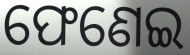
ଫେଣେଇ